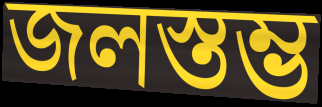
জলস্তম্ভ